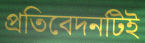
প্রতিবেদনটিই